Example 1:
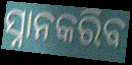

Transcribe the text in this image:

ସ୍ନାନକରିବ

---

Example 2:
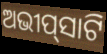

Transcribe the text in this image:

ଅଭୀପ୍‌ସାଟି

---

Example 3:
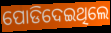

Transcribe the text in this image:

ପୋଡିଦେଇଥିଲେ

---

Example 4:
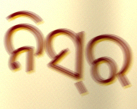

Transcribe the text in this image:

ନିସ୍‌ର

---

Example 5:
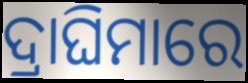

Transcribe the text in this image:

ଦ୍ରାଘିମାରେ